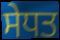
ਸੇਧਤ